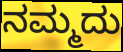
ನಮ್ಮದು